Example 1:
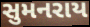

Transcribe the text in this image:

સુમનરાય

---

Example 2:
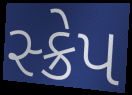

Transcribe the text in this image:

સ્ક્રેપ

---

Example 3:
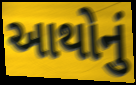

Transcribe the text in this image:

આથોનું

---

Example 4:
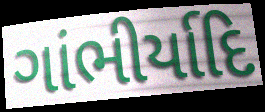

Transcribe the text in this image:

ગાંભીર્યાદિ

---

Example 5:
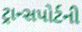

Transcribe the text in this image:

ટ્રાન્સપોર્ટની